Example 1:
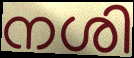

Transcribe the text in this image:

നശി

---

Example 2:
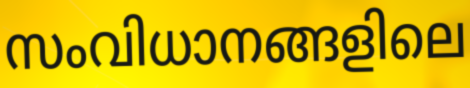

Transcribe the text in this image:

സംവിധാനങ്ങളിലെ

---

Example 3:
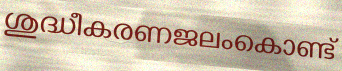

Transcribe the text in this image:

ശുദ്ധീകരണജലംകൊണ്ട്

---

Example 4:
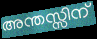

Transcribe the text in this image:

അന്തസ്സിന്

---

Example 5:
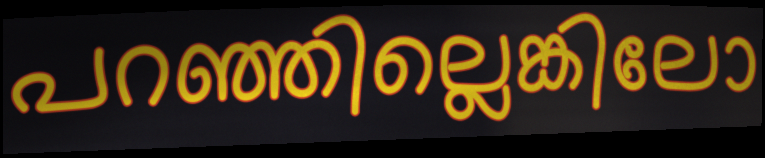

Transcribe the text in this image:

പറഞ്ഞില്ലെങ്കിലോ